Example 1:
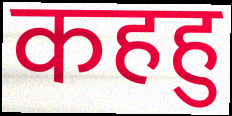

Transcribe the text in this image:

कहहु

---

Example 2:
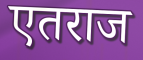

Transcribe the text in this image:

एतराज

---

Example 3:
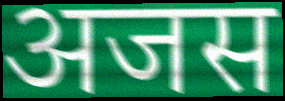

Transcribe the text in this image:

अजस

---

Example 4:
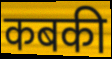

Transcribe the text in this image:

कबकी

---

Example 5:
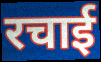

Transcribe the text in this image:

रचाई